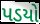
પડયો